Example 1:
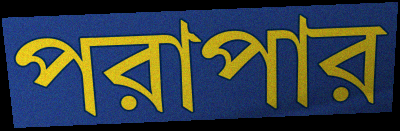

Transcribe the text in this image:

পরাপার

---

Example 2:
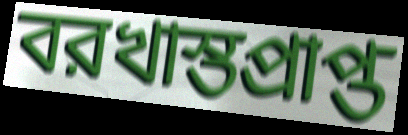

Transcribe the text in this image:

বরখাস্তপ্রাপ্ত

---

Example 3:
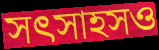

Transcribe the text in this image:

সৎসাহসও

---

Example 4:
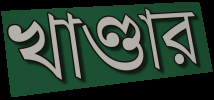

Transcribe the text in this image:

খাণ্ডার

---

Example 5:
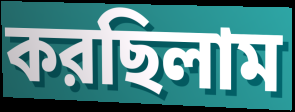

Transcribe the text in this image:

করছিলাম